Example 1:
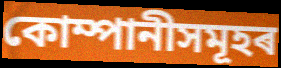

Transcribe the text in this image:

কোম্পানীসমূহৰ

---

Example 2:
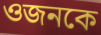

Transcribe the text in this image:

ওজনকে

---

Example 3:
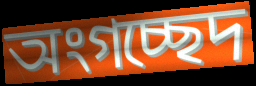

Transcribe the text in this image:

অংগচ্ছেদ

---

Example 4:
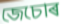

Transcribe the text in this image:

জেচোৰ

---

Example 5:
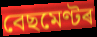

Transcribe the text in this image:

বেছমেণ্টৰ